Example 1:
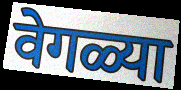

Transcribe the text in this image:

वेगळ्या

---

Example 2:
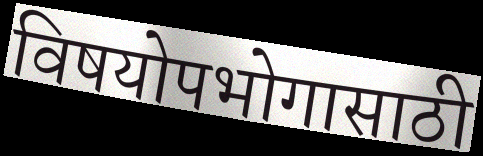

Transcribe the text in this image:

विषयोपभोगासाठी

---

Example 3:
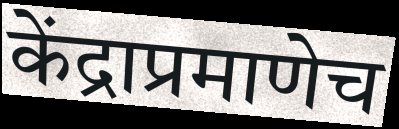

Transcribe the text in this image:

केंद्राप्रमाणेच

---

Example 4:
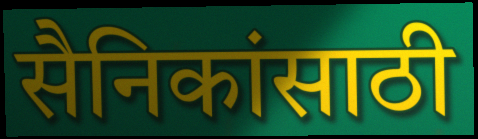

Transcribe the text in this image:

सैनिकांसाठी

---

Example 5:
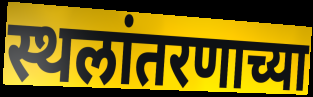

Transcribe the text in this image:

स्थलांतरणाच्या